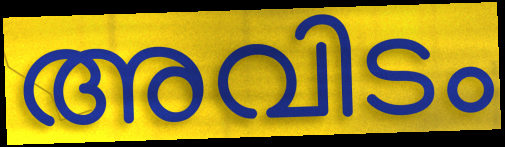
അവിടം